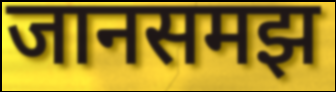
जानसमझ